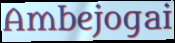
Ambejogai